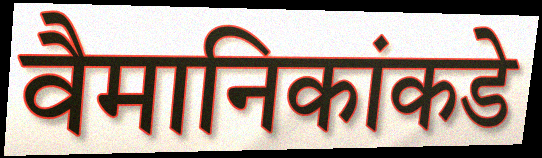
वैमानिकांकडे